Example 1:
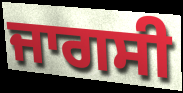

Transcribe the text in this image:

ਜਾਗਸੀ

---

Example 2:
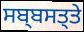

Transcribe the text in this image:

ਸਬ੍ਬਸਤ੍ਤੇ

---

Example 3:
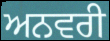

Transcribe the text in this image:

ਅਨਵਰੀ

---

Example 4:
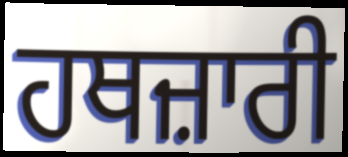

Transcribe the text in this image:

ਹਥਜ਼ਾਰੀ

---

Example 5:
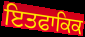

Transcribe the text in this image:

ਇਤਫਾਕਿਕ